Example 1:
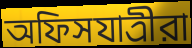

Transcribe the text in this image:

অফিসযাত্রীরা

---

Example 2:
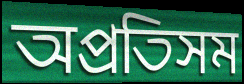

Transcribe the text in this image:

অপ্রতিসম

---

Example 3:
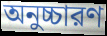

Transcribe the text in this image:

অনুচ্চারণ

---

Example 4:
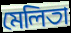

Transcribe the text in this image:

মেলিতা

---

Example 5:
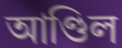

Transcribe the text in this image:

আণ্ডিল